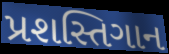
પ્રશસ્તિગાન